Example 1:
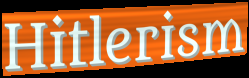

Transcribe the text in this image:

Hitlerism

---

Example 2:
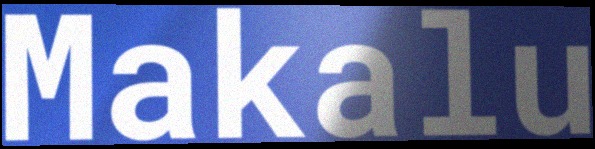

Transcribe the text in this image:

Makalu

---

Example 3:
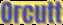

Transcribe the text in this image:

Orcutt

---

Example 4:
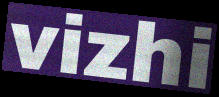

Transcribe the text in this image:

vizhi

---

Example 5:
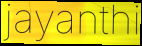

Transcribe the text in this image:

jayanthi